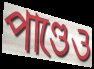
পাণ্ডেও